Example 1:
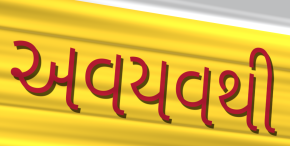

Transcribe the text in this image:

અવયવથી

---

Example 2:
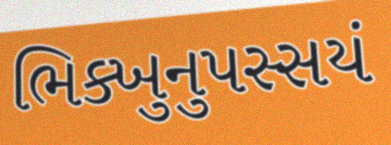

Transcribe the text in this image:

ભિક્ખુનુપસ્સયં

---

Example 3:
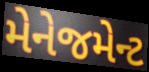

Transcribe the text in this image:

મેનેજમેન્ટ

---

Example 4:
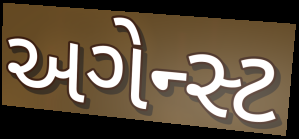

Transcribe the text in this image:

અગેન્સ્ટ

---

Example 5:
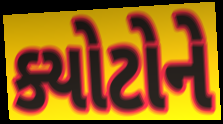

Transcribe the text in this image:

ક્યોટોને